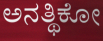
ಅನತ್ಥಿಕೋ